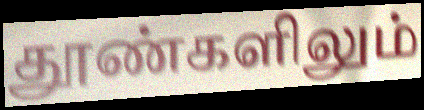
தூண்களிலும்